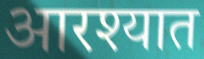
आरश्यात